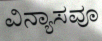
ವಿನ್ಯಾಸವೂ